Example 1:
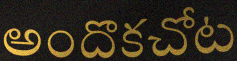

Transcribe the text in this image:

అందొకచోట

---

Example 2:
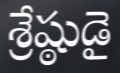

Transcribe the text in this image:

శ్రేష్ఠుడై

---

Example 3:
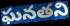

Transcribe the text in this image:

ఘనతని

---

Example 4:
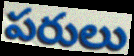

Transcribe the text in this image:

పరులు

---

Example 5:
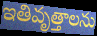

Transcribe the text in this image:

ఇతివృత్తాలను